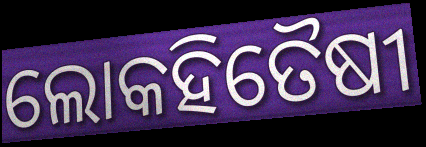
ଲୋକହିତୈଷୀ